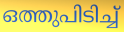
ഒത്തുപിടിച്ച്